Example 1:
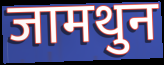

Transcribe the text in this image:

जामथुन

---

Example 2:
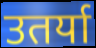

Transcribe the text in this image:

उतर्या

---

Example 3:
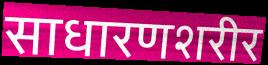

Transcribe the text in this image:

साधारणशरीर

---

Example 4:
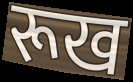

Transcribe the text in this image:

रूख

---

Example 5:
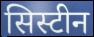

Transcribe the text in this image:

सिस्टीन